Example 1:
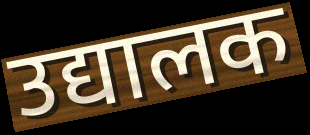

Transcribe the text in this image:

उद्यालक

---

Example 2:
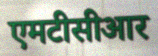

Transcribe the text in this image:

एमटीसीआर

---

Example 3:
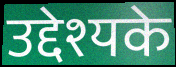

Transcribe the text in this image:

उद्देश्यके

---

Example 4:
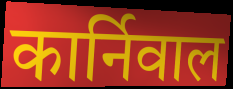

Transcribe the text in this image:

कार्निवाल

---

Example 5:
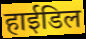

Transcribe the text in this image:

हाईडिल